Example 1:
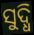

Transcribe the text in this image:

ସୁଦ୍ଧି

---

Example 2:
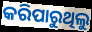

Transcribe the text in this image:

କରିପାରୁଥିଲୁ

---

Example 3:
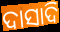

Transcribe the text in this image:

ଦାସାଦି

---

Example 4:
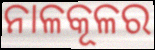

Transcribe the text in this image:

ନାଳକୂଳର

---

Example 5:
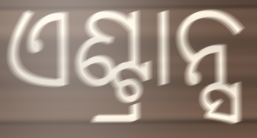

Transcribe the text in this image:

ଏଣ୍ଟ୍ରାନ୍ସ